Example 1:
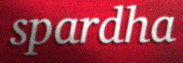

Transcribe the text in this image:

spardha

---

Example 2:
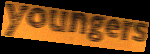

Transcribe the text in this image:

youngers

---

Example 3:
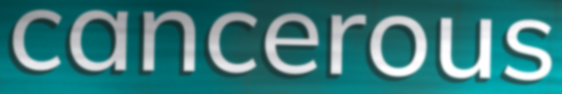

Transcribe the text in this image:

cancerous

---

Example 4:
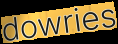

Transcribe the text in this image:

dowries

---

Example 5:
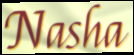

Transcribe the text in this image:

Nasha